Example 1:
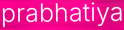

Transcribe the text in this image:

prabhatiya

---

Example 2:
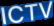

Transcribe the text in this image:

ICTV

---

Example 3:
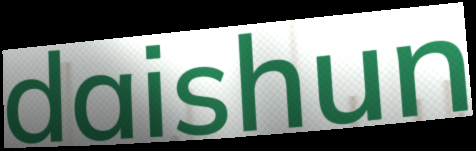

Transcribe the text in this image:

daishun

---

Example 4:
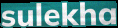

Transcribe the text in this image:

sulekha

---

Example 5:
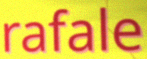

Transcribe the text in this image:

rafale